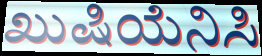
ಖುಷಿಯೆನಿಸಿ